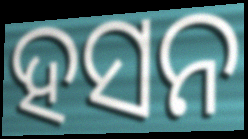
ହସନ